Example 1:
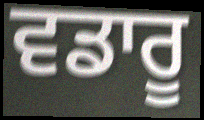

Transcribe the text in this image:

ਵਡਾਰੂ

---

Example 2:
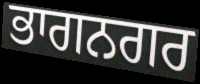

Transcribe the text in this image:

ਭਾਗਨਗਰ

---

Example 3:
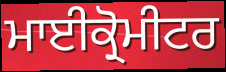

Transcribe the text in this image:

ਮਾਈਕ੍ਰੋਮੀਟਰ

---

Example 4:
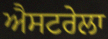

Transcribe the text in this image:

ਐਸਟਰੇਲਾ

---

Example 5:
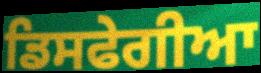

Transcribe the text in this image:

ਡਿਸਫੇਗੀਆ